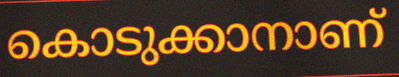
കൊടുക്കാനാണ്